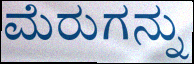
ಮೆರುಗನ್ನು